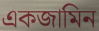
একজামিন